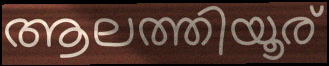
ആലത്തിയൂര്